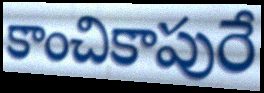
కాంచికాపురే